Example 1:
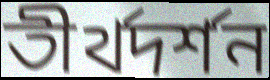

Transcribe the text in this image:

তীর্থদর্শন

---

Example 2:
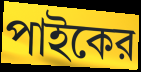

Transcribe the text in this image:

পাইকের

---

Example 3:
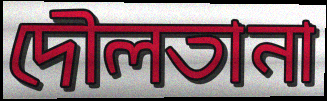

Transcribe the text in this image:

দৌলতানা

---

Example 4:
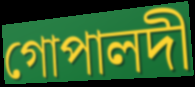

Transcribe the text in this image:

গোপালদী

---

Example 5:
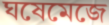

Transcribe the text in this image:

ঘষেমেজে